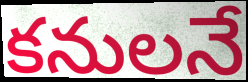
కనులనే